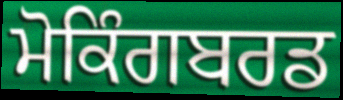
ਮੋਕਿੰਗਬਰਡ